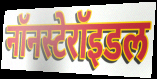
नॉनस्टेरॉइडल